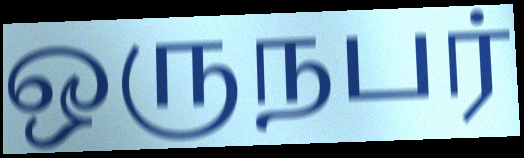
ஒருநபர்